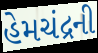
હેમચંદ્રની